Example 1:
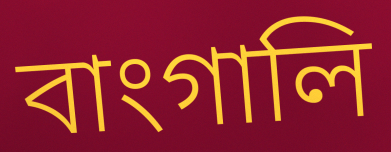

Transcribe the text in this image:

বাংগালি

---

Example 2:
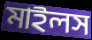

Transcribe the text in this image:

মাইলস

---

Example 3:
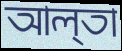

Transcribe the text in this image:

আল্‌তা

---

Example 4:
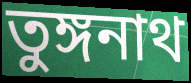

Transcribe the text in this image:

তুঙ্গনাথ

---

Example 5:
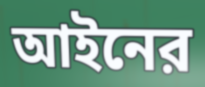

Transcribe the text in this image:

আইনের